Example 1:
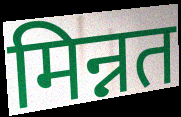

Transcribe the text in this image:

मिन्नत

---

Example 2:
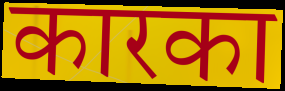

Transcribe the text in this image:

कारका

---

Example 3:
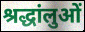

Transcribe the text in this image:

श्रद्धांलुओं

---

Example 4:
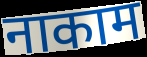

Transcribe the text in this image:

नाकाम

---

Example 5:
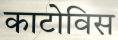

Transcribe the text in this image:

काटोविस